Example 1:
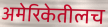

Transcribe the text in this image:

अमेरिकेतीलच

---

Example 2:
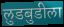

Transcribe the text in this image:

लुडबुडीला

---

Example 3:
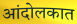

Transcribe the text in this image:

आंदोलकात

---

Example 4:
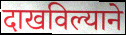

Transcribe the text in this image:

दाखविल्याने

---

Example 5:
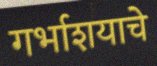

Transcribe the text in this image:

गर्भाशयाचे